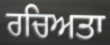
ਰਚਿਅਤਾ